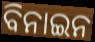
ବିନାଇନ